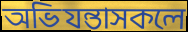
অভিযন্তাসকলে